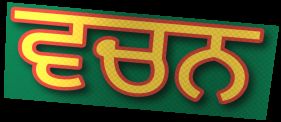
ਵਚਨ